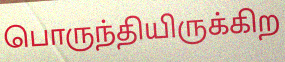
பொருந்தியிருக்கிற